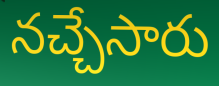
నచ్చేసారు